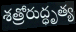
శత్రోరుద్ధృత్య